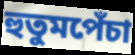
হুতুমপেঁচা